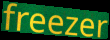
freezer